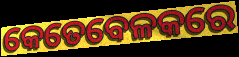
କେତେବେଳକରେ